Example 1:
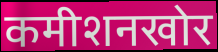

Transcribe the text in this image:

कमीशनखोर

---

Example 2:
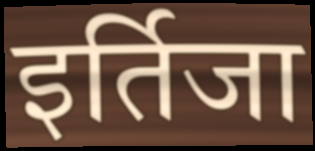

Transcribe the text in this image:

इर्तिजा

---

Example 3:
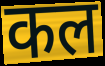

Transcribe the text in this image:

कल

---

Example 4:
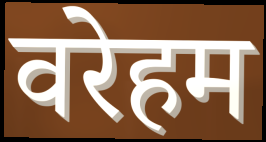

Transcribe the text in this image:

वरेहम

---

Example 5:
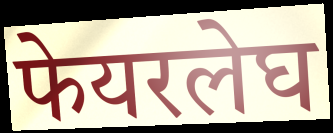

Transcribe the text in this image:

फेयरलेघ